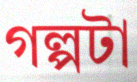
গল্পটা